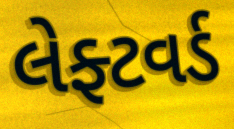
લેફ્ટવર્ડ